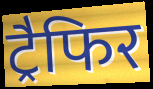
ट्रैफिर